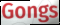
Gongs